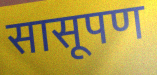
सासूपण